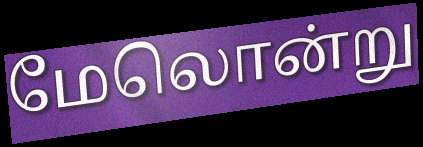
மேலொன்று